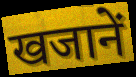
खजानें